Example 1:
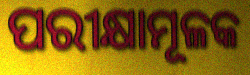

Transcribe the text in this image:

ପରୀକ୍ଷାମୂଳକ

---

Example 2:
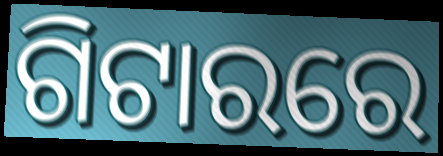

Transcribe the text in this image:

ଗିଟାରରେ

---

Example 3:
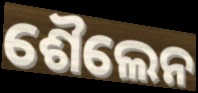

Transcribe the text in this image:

ଶୈଲେନ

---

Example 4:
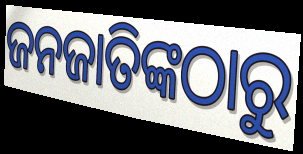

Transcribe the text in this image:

ଜନଜାତିଙ୍କଠାରୁ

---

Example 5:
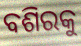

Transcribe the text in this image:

ବଶିରକୁ